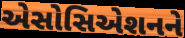
એસોસિએશનને